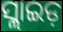
ସ୍ଲାଇଡ଼